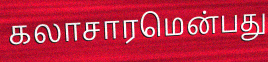
கலாசாரமென்பது